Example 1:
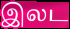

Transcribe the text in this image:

இலட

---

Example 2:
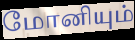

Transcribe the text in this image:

மோனியும்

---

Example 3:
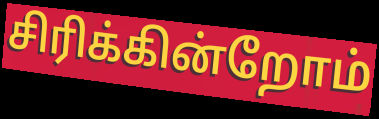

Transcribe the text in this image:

சிரிக்கின்றோம்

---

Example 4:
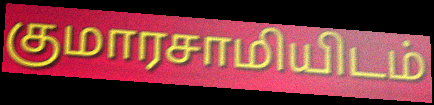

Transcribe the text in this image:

குமாரசாமியிடம்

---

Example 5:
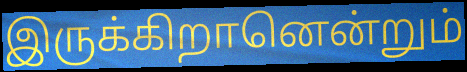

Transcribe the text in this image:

இருக்கிறானென்றும்